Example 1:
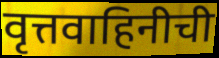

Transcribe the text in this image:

वृत्तवाहिनीची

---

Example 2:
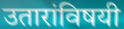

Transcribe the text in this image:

उतारांविषयी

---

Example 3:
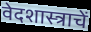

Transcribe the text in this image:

वेदशास्त्राचें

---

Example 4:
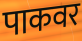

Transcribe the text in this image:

पाकवर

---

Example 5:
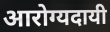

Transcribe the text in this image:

आरोग्यदायी